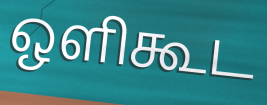
ஒளிகூட